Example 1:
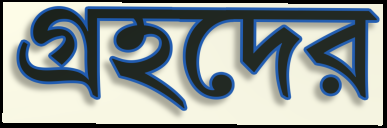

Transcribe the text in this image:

গ্রহদের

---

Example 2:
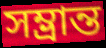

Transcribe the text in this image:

সম্ভ্রান্ত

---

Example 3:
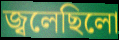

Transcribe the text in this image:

জ্বলেছিলো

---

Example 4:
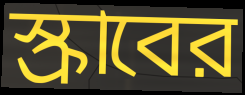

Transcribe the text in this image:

স্ক্রাবের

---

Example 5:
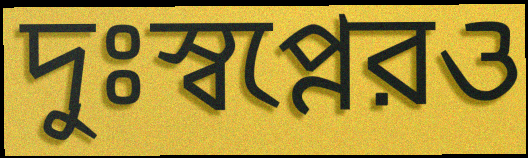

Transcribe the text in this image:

দুঃস্বপ্নেরও